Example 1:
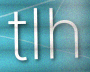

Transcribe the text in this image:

tlh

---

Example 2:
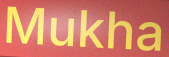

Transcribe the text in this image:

Mukha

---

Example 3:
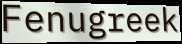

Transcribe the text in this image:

Fenugreek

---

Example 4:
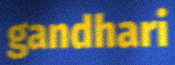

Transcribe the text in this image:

gandhari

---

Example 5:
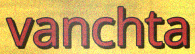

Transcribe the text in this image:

vanchta